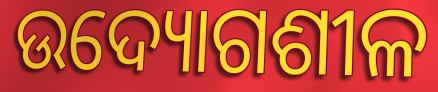
ଉଦ୍ୟୋଗଶୀଳ